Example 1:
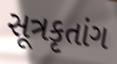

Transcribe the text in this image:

સૂત્રકૃતાંગ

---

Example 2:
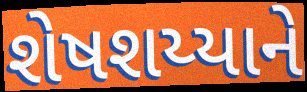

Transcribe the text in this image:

શેષશય્યાને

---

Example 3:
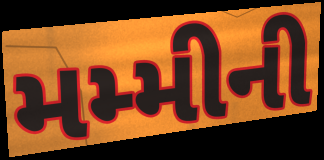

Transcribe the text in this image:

મમ્મીની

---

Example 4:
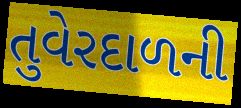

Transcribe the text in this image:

તુવેરદાળની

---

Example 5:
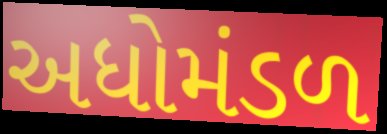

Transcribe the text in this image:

અધોમંડળ